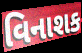
વિનાશક